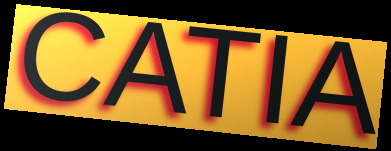
CATIA